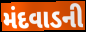
મંદવાડની